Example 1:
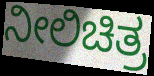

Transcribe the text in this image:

ನೀಲಿಚಿತ್ರ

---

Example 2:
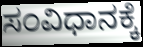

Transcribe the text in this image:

ಸಂವಿಧಾನಕ್ಕೆ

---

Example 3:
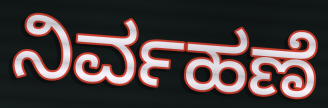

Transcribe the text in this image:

ನಿರ್ವಹಣೆ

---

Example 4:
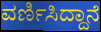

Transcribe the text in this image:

ವರ್ಣಿಸಿದ್ದಾನೆ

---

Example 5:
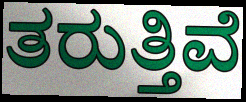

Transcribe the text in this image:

ತರುತ್ತಿವೆ